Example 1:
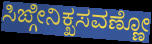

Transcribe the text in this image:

ಸಿಙ್ಗೀನಿಕ್ಖಸವಣ್ಣೋ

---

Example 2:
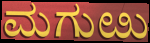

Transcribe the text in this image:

ಮಗುೞು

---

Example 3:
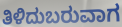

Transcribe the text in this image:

ತಿಳಿದುಬರುವಾಗ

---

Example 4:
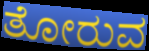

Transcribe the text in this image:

ತೋರುವ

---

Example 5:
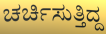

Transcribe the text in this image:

ಚರ್ಚಿಸುತ್ತಿದ್ದ